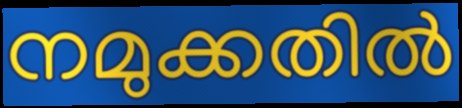
നമുക്കതിൽ